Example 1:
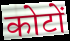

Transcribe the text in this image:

कोटों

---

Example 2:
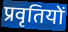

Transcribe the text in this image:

प्रवृतियों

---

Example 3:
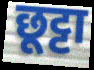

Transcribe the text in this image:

छूट्टा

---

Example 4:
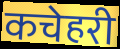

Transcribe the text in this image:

कचेहरी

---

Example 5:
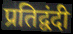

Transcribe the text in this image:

प्रतिद्वंदी